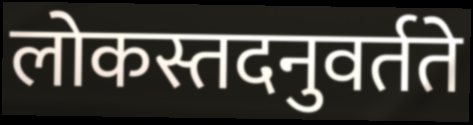
लोकस्तदनुवर्तते